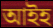
আইহ